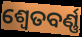
ଶ୍ୱେତବର୍ଣ୍ଣ